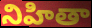
నిహితా